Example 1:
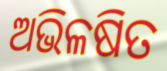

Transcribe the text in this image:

ଅଭିଳଷିତ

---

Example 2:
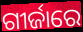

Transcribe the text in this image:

ଗୀର୍ଜାରେ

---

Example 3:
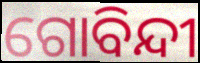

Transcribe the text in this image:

ଗୋବିନ୍ଦୀ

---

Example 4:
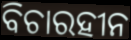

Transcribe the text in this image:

ବିଚାରହୀନ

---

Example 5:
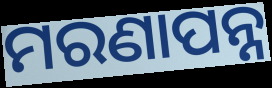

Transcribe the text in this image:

ମରଣାପନ୍ନ